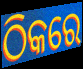
ଠିକରେ